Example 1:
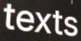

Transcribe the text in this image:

texts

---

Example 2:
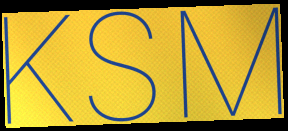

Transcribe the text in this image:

KSM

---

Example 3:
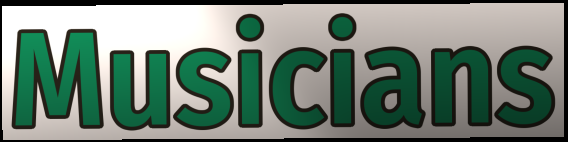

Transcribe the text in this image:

Musicians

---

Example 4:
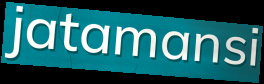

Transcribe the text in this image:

jatamansi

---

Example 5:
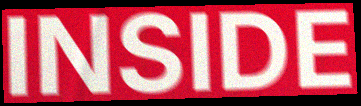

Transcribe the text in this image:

INSIDE